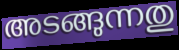
അടങ്ങുന്നതു